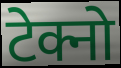
टेक्नो